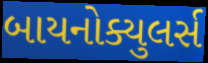
બાયનોક્યુલર્સ